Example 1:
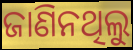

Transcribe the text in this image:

ଜାଣିନଥିଲୁ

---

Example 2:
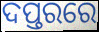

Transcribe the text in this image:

ଦପ୍ତରରେ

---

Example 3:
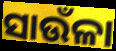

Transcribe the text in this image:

ସାଉଁଳା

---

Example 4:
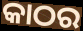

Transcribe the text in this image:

କାଠର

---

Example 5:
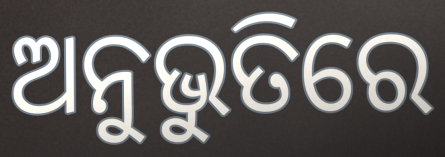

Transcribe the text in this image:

ଅନୁଭୁତିରେ